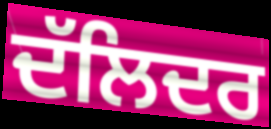
ਦੱਲਿਦਰ